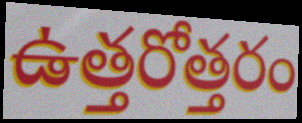
ఉత్తరోత్తరం